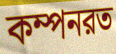
কম্পনরত